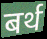
बर्थ